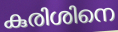
കുരിശിനെ